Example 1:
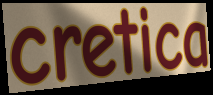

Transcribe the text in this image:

cretica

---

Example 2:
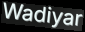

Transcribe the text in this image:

Wadiyar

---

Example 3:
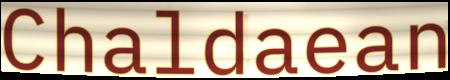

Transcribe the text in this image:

Chaldaean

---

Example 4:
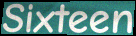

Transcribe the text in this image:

Sixteen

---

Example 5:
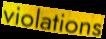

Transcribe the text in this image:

violations